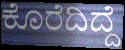
ಕೊರೆದಿದ್ದೆ